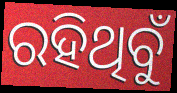
ରହିଥିବୁଁ